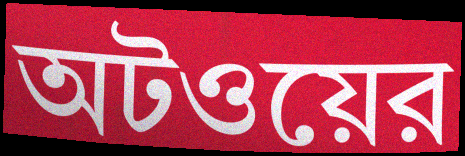
অটওয়ের